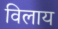
विलाय